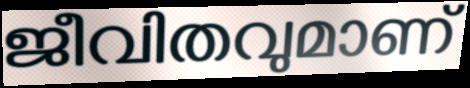
ജീവിതവുമാണ്